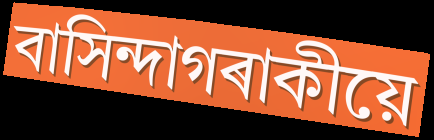
বাসিন্দাগৰাকীয়ে